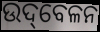
ଉଦ୍‌ବେଳନ